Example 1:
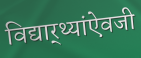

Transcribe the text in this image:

विद्यार्थ्यांऐवजी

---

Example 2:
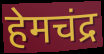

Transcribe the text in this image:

हेमचंद्र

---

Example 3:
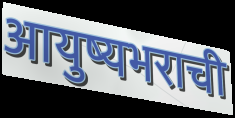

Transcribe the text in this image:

आयुष्यभराची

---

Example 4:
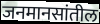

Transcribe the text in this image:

जनमानसांतील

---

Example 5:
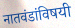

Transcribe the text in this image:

नातवंडांविषयी